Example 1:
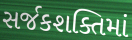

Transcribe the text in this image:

સર્જકશક્તિમાં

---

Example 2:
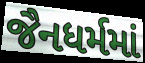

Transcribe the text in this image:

જૈનધર્મમાં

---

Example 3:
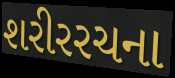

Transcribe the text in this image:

શરીરરચના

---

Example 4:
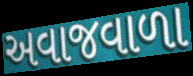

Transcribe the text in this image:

અવાજવાળા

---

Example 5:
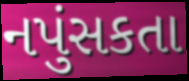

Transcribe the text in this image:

નપુંસકતા